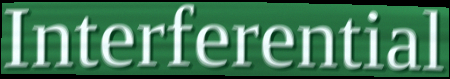
Interferential